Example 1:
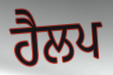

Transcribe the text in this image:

ਹੈਲਪ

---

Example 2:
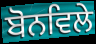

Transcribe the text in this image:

ਬੋਨਵਿਲੇ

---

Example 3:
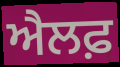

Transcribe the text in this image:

ਐਲਫ਼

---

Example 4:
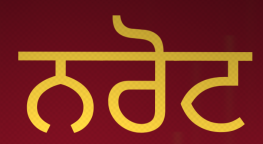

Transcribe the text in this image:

ਨਰੋਟ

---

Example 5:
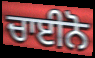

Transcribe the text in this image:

ਚਾਈਨੋ